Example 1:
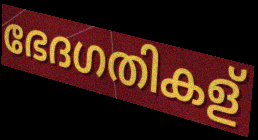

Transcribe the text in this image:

ഭേദഗതികള്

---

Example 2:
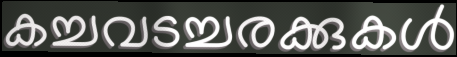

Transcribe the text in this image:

കച്ചവടച്ചരക്കുകൾ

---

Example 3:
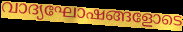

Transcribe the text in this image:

വാദ്യഘോഷങ്ങളോടെ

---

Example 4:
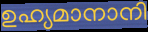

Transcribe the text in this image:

ഉഹ്യമാനാനി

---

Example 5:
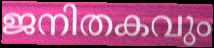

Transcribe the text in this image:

ജനിതകവും